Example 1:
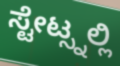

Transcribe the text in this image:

ಸ್ಟೇಟ್ಸ್ನಲ್ಲಿ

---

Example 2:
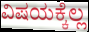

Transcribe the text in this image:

ವಿಷಯಕ್ಕೆಲ್ಲ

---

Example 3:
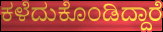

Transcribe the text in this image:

ಕಳೆದುಕೊಂಡಿದ್ದಾರೆ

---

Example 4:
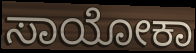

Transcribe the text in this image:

ಸಾಯೋಕಾ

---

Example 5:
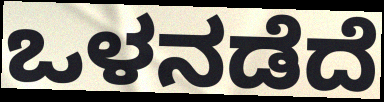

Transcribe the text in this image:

ಒಳನಡೆದೆ